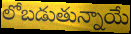
లోబడుతున్నాయే